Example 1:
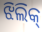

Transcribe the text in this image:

ଝିଲିକ୍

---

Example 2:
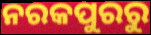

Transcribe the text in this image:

ନରକପୁରରୁ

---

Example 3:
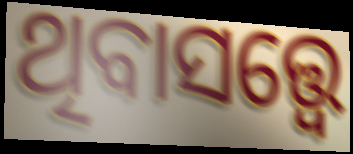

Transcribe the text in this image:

ଥିବାସତ୍ତ୍ଵେ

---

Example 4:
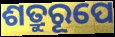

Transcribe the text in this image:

ଶତ୍ରୁରୂପେ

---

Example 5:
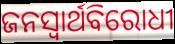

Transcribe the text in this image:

ଜନସ୍ଵାର୍ଥବିରୋଧୀ